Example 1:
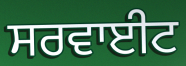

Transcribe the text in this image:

ਸਰਵਾਈਟ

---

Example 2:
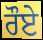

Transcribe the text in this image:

ਰੌਏ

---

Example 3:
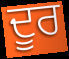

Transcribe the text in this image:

ਦੂਰ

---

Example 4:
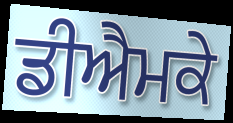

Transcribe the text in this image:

ਡੀਐਮਕੇ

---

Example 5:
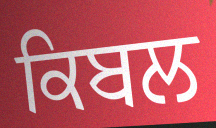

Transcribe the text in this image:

ਕਿਬਲ